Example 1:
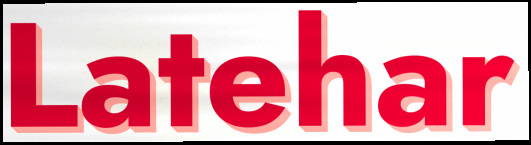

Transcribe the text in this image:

Latehar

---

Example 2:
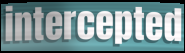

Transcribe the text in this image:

intercepted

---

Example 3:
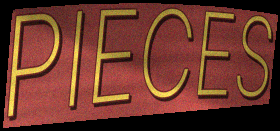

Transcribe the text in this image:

PIECES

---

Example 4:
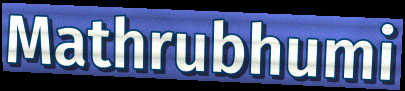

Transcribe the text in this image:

Mathrubhumi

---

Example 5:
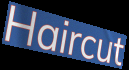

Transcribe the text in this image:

Haircut